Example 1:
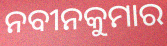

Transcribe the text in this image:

ନବୀନକୁମାର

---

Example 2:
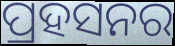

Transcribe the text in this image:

ପ୍ରହସନର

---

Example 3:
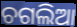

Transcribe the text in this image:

ଚଗଲିଆ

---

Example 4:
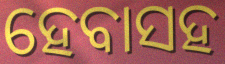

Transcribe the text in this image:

ହେବାସହ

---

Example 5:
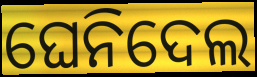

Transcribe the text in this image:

ଘେନିଦେଲ